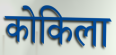
कोकिला